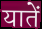
यातें